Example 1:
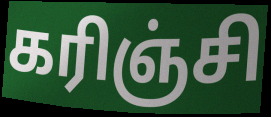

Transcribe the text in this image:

கரிஞ்சி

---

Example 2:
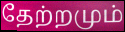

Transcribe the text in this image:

தேற்றமும்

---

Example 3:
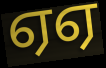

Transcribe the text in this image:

ஏஏ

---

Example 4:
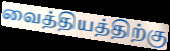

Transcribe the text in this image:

வைத்தியத்திற்கு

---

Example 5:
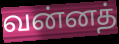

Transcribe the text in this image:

வன்னத்